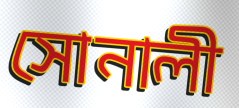
সোনালী